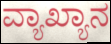
ವ್ಯಾಖ್ಯಾನ